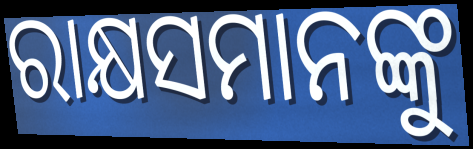
ରାକ୍ଷସମାନଙ୍କୁ